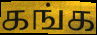
கங்க